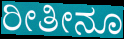
ರೀತೀನೂ